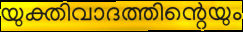
യുക്തിവാദത്തിന്റെയും